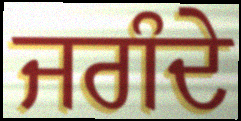
ਜਗੰਦੇ